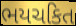
ભયચકિત